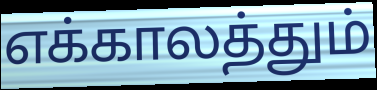
எக்காலத்தும்